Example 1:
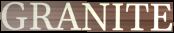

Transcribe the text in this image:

GRANITE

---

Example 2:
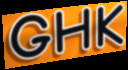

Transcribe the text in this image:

GHK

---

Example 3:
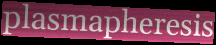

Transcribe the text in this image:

plasmapheresis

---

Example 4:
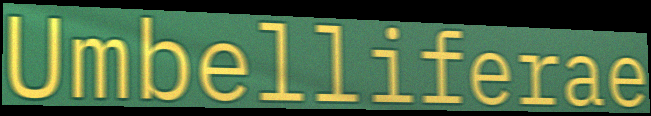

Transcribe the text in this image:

Umbelliferae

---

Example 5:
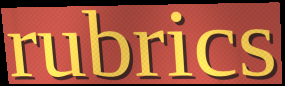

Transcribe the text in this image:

rubrics